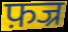
फ़ज्र